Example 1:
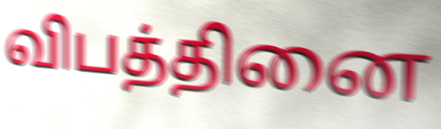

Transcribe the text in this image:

விபத்தினை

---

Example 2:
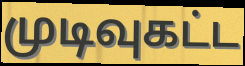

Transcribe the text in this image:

முடிவுகட்ட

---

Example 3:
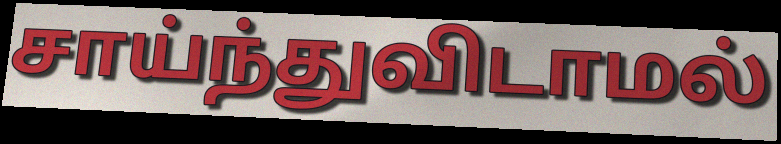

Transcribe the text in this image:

சாய்ந்துவிடாமல்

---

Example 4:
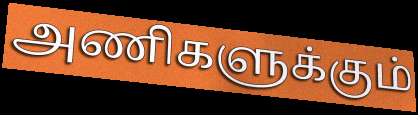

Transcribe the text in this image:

அணிகளுக்கும்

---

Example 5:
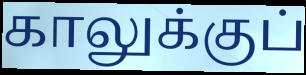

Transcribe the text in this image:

காலுக்குப்